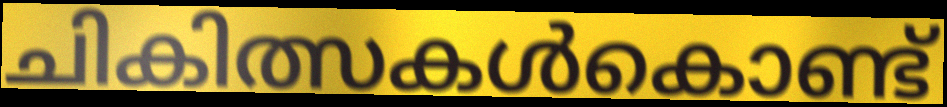
ചികിത്സകൾകൊണ്ട്